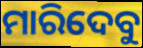
ମାରିଦେବୁ